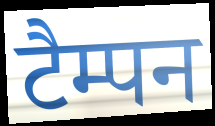
टैम्पन